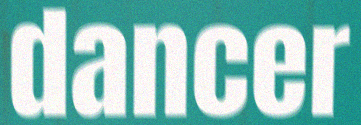
dancer